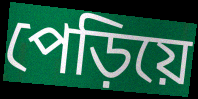
পেড়িয়ে